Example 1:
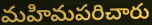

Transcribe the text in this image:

మహిమపరిచారు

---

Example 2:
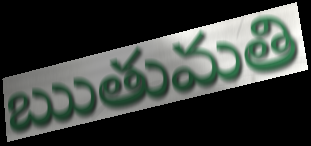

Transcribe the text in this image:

ఋతుమతి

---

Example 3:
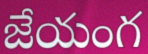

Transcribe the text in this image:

జేయంగ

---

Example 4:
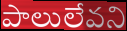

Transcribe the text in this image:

పాలులేవని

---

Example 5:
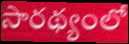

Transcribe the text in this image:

సారథ్యంలో